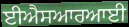
ਈਐਸਆਰਆਈ